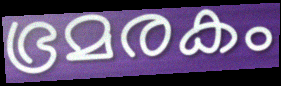
ഭ്രമരകം